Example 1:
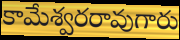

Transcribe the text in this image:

కామేశ్వరరావుగారు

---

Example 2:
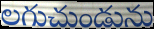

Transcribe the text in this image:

లగుచుండును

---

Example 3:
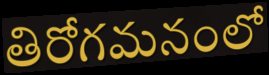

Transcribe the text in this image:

తిరోగమనంలో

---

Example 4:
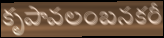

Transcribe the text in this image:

కృపావలంబనకరీ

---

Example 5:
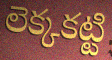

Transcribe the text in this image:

లెక్కకట్టి